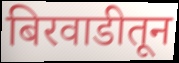
बिरवाडीतून